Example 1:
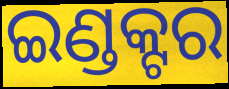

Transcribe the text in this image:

ଇଣ୍ଡକ୍ଟର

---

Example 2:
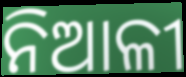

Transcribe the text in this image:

ନିଆଳୀ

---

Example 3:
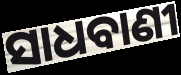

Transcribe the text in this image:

ସାଧବାଣୀ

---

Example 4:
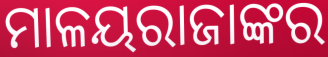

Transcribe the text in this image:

ମାଳୟରାଜାଙ୍କର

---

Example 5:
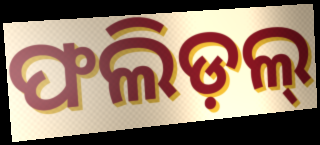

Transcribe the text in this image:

ଫଲିଡ଼ଲ୍